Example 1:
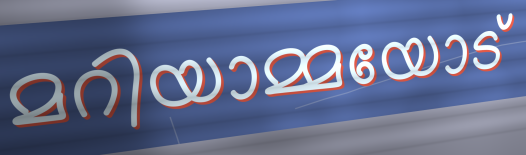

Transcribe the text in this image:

മറിയാമ്മയോട്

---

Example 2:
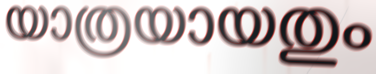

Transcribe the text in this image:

യാത്രയായതും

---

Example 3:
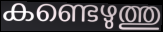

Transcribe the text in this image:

കണ്ടെഴുത്തു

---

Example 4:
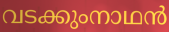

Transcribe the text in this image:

വടക്കുംനാഥൻ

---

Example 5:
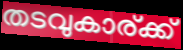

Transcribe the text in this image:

തടവുകാര്ക്ക്